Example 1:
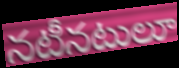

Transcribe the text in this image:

నటీనటులూ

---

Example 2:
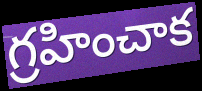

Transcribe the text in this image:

గ్రహించాక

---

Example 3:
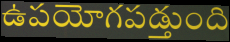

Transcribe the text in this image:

ఉపయోగపడ్తుంది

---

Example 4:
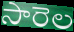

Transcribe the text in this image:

సారెల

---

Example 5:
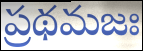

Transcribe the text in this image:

ప్రథమజః